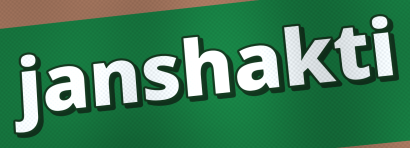
janshakti